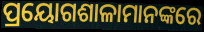
ପ୍ରୟୋଗଶାଳାମାନଙ୍କରେ